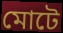
মোটে